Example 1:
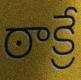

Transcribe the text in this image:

ఠాక్రే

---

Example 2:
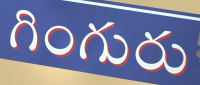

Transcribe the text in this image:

గింగురు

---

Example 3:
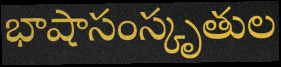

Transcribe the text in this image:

భాషాసంస్కృతుల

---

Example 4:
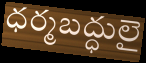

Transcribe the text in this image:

ధర్మబద్ధులై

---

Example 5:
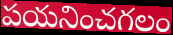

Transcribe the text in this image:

పయనించగలం